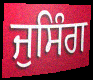
ਜੁਸਿੰਗ